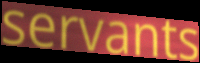
servants